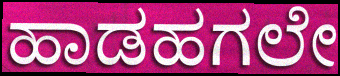
ಹಾಡಹಗಲೇ